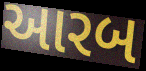
આરબ